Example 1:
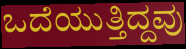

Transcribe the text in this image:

ಒದೆಯುತ್ತಿದ್ದವು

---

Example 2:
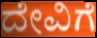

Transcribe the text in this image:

ದೇವಿಗೆ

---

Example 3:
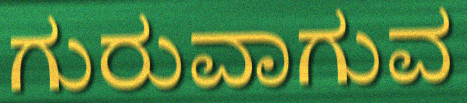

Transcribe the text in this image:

ಗುರುವಾಗುವ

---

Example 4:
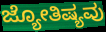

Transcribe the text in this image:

ಜ್ಯೋತಿಷ್ಯವು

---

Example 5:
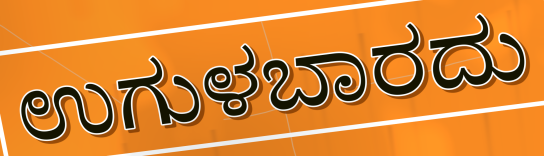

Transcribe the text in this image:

ಉಗುಳಬಾರದು